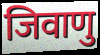
जिवाणु